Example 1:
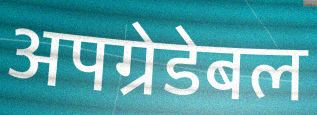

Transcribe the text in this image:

अपग्रेडेबल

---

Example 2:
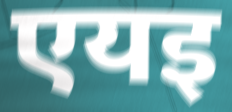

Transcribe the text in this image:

एयइ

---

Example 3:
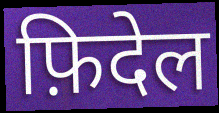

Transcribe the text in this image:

फ़िदेल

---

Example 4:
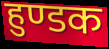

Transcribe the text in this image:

हुण्डक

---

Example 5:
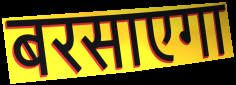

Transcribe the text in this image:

बरसाएगा